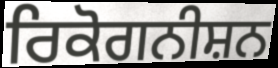
ਰਿਕੋਗਨੀਸ਼ਨ